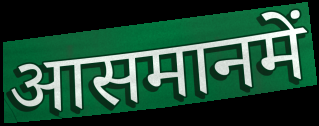
आसमानमें